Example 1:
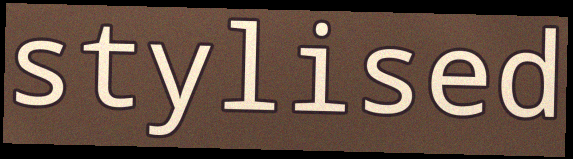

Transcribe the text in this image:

stylised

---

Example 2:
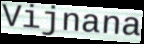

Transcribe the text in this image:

Vijnana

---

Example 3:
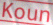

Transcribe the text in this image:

Koun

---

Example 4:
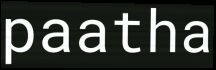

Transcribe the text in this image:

paatha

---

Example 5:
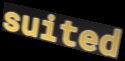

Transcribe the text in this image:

suited